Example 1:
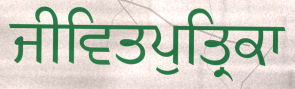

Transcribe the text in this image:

ਜੀਵਿਤਪੁਤ੍ਰਿਕਾ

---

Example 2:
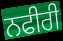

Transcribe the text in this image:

ਨਫੀਰੀ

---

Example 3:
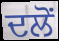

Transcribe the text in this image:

ਦਲੋਂ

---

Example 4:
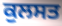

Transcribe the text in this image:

ਕੁਲਸਤ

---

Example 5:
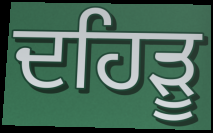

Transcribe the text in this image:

ਦਹਿੜੂ